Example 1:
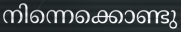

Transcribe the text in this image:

നിന്നെക്കൊണ്ടു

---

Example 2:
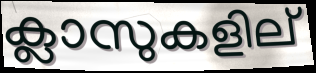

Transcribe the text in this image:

ക്ലാസുകളില്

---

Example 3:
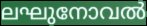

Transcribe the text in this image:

ലഘുനോവൽ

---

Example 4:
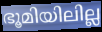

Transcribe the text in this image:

ഭൂമിയിലില്ല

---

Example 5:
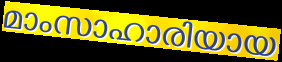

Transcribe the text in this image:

മാംസാഹാരിയായ